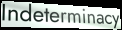
Indeterminacy